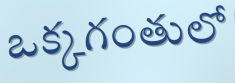
ఒక్కగంతులో